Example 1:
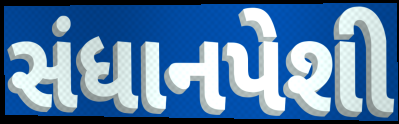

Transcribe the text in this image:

સંધાનપેશી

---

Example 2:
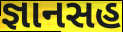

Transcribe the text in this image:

જ્ઞાનસહ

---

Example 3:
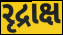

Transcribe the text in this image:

રૃદ્રાક્ષ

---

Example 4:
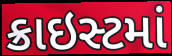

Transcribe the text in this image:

ક્રાઇસ્ટમાં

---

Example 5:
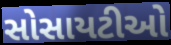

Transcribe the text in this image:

સોસાયટીઓ